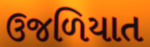
ઉજળિયાત